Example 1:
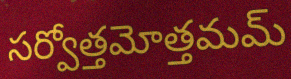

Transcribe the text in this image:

సర్వోత్తమోత్తమమ్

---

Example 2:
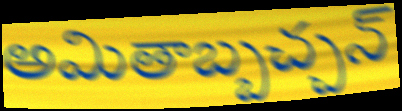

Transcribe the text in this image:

అమితాబ్బచ్చన్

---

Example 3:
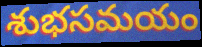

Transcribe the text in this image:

శుభసమయం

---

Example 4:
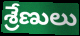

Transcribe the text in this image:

శ్రేణులు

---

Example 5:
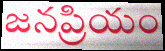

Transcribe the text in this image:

జనప్రియం